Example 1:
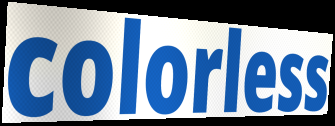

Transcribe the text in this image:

colorless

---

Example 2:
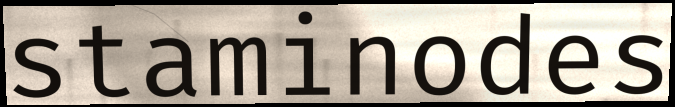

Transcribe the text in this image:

staminodes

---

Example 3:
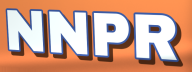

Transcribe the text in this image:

NNPR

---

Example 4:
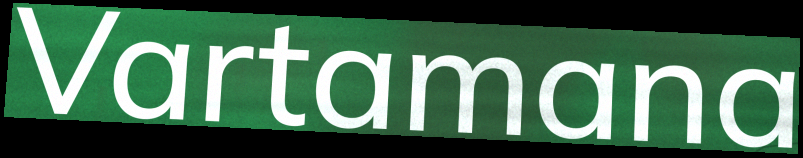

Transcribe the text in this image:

Vartamana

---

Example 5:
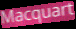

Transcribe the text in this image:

Macquart